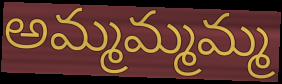
అమ్మమ్మమ్మ